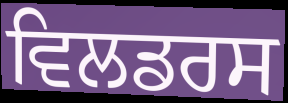
ਵਿਲਡਰਸ